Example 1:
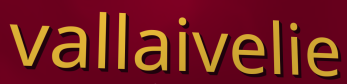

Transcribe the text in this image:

vallaivelie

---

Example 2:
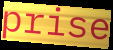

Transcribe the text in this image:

prise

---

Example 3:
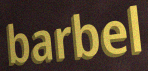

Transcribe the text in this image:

barbel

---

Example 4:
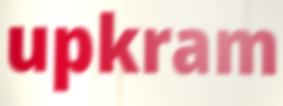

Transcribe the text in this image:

upkram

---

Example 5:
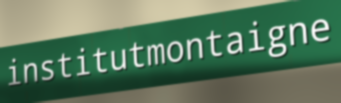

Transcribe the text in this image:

institutmontaigne